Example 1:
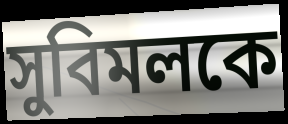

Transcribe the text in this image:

সুবিমলকে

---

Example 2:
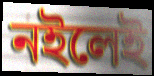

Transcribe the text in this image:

নইলেই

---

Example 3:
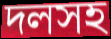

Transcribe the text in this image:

দলসহ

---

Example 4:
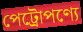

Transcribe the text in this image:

পেট্রোপণ্যে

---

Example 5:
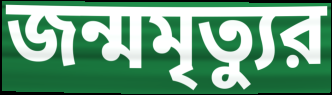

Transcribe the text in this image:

জন্মমৃত্যুর